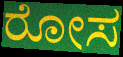
ರೋಸ